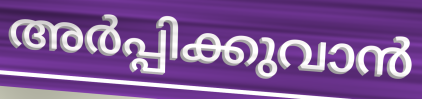
അർപ്പിക്കുവാൻ